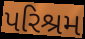
પરિશ્રમ